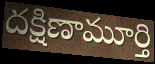
దక్షిణామూర్తి